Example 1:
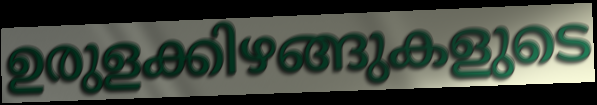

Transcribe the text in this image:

ഉരുളക്കിഴങ്ങുകളുടെ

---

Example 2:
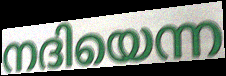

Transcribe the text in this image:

നദിയെന്ന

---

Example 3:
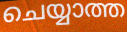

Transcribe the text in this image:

ചെയ്യാത്ത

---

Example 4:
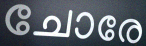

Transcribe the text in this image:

ചോരേ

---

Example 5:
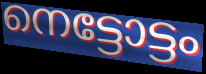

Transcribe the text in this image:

നെട്ടോട്ടം